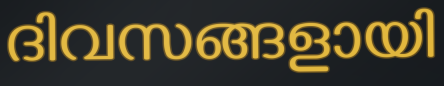
ദിവസങ്ങളായി